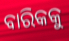
ବାରିକକୁ